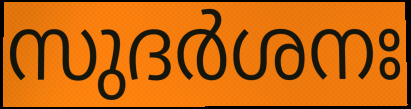
സുദർശനഃ